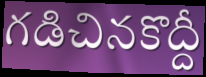
గడిచినకొద్దీ